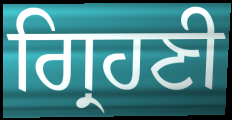
ਗ੍ਰਿਹਣੀ